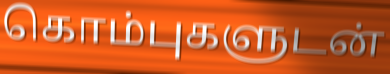
கொம்புகளுடன்